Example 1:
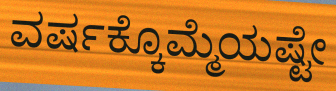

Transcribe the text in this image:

ವರ್ಷಕ್ಕೊಮ್ಮೆಯಷ್ಟೇ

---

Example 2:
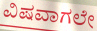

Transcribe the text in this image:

ವಿಷವಾಗಲೇ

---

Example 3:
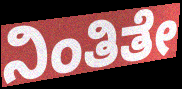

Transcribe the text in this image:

ನಿಂತಿತೇ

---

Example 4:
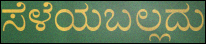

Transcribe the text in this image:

ಸೆಳೆಯಬಲ್ಲದು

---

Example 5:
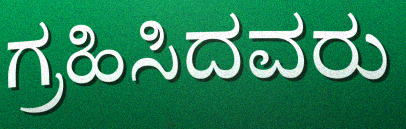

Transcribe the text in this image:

ಗ್ರಹಿಸಿದವರು